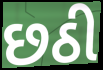
છઠી